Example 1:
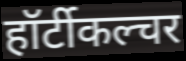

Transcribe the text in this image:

हॉर्टीकल्चर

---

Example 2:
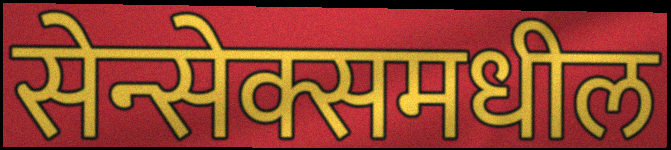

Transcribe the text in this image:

सेन्सेक्समधील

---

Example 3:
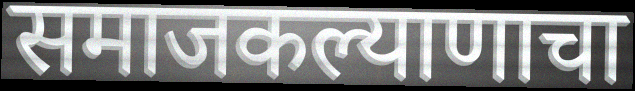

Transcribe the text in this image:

समाजकल्याणाचा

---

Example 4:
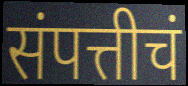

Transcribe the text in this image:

संपत्तीचं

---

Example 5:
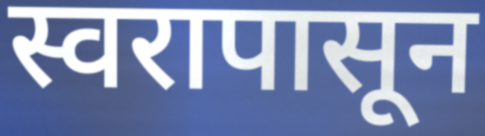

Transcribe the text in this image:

स्वरापासून